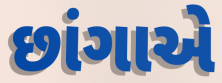
છાંગાએ